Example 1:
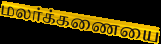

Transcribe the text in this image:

மலர்க்கணையை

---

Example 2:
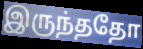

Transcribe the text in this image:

இருந்ததோ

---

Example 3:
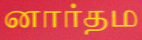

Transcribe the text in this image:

னார்தம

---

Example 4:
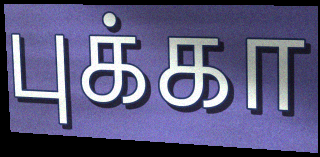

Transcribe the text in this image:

புக்கா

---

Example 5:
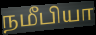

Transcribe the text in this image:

நமீபியா